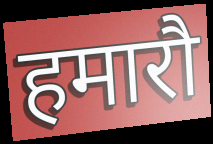
हमारौ